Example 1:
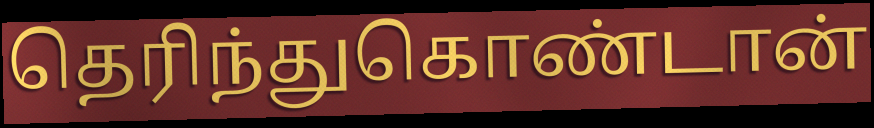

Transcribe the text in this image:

தெரிந்துகொண்டான்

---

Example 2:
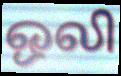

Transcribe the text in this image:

ஒலி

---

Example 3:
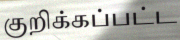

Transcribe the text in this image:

குறிக்கப்பட்ட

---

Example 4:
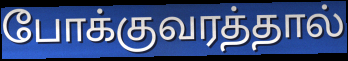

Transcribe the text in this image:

போக்குவரத்தால்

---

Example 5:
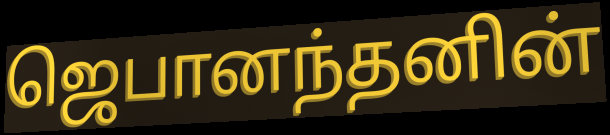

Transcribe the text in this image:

ஜெபானந்தனின்